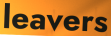
leavers